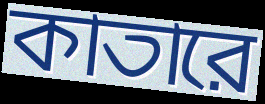
কাতারে